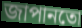
জাপানতো